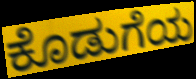
ಕೊಡುಗೆಯ